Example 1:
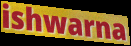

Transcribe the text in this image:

ishwarna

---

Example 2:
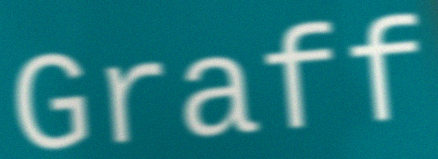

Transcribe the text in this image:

Graff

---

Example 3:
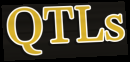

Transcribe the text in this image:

QTLs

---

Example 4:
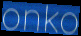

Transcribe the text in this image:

onko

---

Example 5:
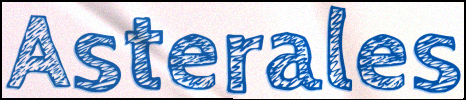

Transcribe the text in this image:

Asterales